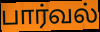
பார்வல்